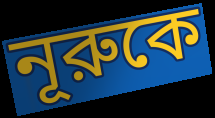
নূরুকে